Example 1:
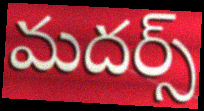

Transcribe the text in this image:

మదర్స్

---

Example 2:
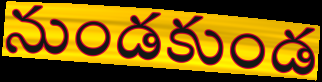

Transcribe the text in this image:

నుండకుండ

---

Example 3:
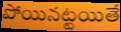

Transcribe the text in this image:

పోయినట్టయితే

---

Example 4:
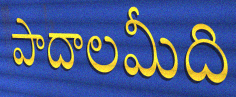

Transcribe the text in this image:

పాదాలమీది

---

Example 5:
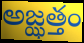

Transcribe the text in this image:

అజ్ఝత్తం